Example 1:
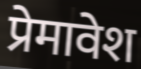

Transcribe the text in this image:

प्रेमावेश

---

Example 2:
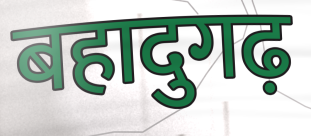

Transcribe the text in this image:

बहादुगढ़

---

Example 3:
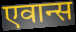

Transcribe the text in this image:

एवान्स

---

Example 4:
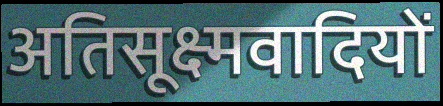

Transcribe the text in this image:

अतिसूक्ष्मवादियों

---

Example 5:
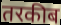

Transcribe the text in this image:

तरकीब